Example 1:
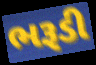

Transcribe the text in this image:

ભરૂડી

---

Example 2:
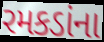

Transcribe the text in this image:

રમકડાંના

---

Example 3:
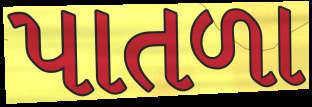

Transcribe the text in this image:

પાતળા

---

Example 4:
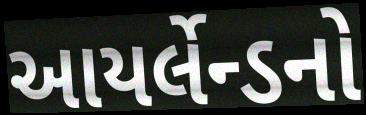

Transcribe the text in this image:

આયર્લેન્ડનો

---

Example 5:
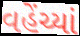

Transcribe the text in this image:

વહેંચ્યાં